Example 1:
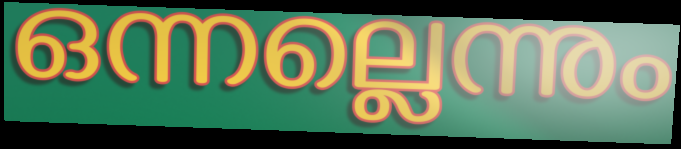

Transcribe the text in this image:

ഒന്നല്ലെന്നും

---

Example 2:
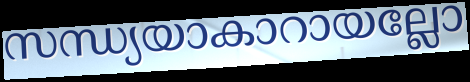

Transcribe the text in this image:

സന്ധ്യയാകാറായല്ലോ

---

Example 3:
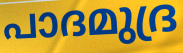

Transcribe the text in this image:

പാദമുദ്ര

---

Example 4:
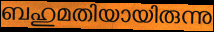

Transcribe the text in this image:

ബഹുമതിയായിരുന്നു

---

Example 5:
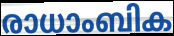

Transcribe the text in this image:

രാധാംബിക